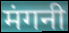
मंगनी